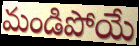
మండిపోయే